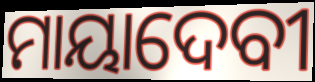
ମାୟାଦେବୀ